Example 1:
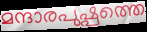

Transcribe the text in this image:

മന്ദാരപുഷ്പത്തെ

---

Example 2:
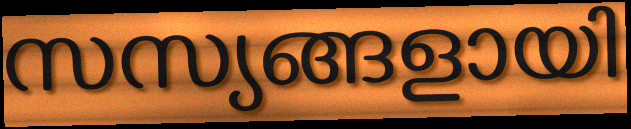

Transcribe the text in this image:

സസ്യങ്ങളായി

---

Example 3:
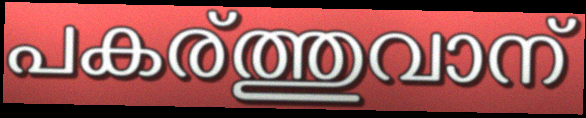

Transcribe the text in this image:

പകര്ത്തുവാന്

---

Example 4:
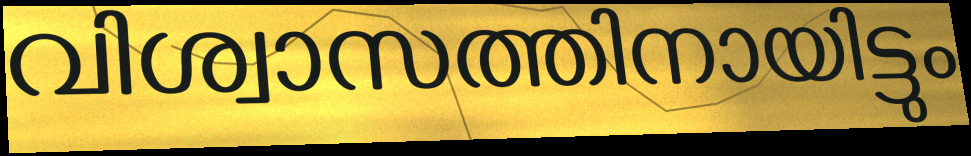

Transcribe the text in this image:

വിശ്വാസത്തിനായിട്ടും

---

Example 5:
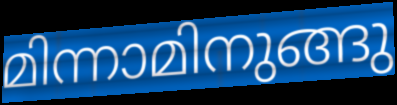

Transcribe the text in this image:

മിന്നാമിനുങ്ങു